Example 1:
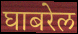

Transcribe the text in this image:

घाबरेल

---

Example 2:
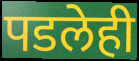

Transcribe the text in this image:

पडलेही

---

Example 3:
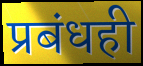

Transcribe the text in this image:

प्रबंधही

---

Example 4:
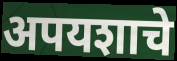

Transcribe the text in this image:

अपयशाचे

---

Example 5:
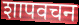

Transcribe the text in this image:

शापवचन